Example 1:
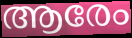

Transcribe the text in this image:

ആരേം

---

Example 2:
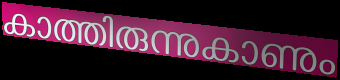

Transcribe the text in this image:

കാത്തിരുന്നുകാണും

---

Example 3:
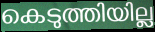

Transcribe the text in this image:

കെടുത്തിയില്ല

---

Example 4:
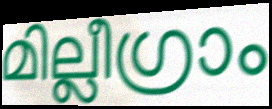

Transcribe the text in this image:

മില്ലീഗ്രാം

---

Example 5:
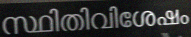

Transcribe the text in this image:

സ്ഥിതിവിശേഷം